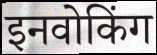
इनवोकिंग